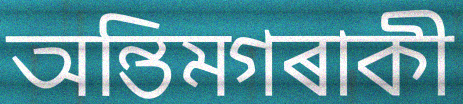
অন্তিমগৰাকী